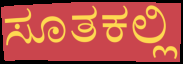
ಸೂತಕಲ್ಲಿ